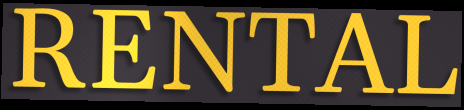
RENTAL